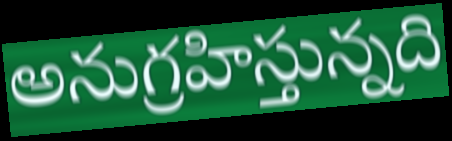
అనుగ్రహిస్తున్నది